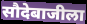
सौदेबाजीला